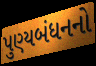
પુણ્યબંધનનો